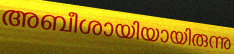
അബീശായിയായിരുന്നു